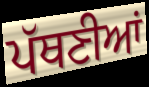
ਪੱਥਣੀਆਂ